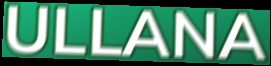
ULLANA